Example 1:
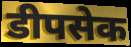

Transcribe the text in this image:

डीपसेक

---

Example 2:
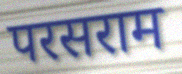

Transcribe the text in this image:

परसराम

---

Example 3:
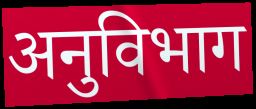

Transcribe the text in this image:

अनुविभाग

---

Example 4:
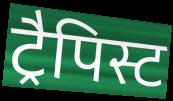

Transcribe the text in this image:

ट्रैपिस्ट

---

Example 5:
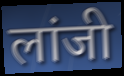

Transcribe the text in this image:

लांजी